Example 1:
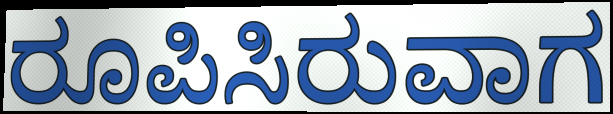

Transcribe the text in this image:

ರೂಪಿಸಿರುವಾಗ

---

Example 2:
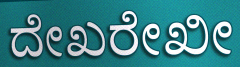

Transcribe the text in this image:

ದೇಖರೇಖೀ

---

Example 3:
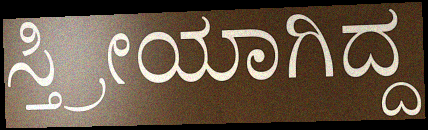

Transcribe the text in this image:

ಸ್ತ್ರೀಯಾಗಿದ್ದ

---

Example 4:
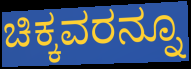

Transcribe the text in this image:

ಚಿಕ್ಕವರನ್ನೂ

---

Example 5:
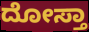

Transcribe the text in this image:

ದೋಸ್ತಾ